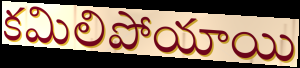
కమిలిపోయాయి